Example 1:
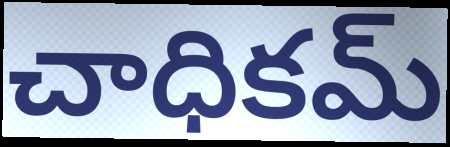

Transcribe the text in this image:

చాధికమ్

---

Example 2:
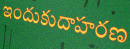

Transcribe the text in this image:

ఇందుకుదాహరణ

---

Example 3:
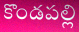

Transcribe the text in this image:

కొండపల్లి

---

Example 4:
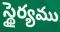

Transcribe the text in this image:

స్థైర్యము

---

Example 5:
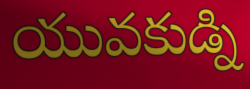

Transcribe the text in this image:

యువకుడ్ని